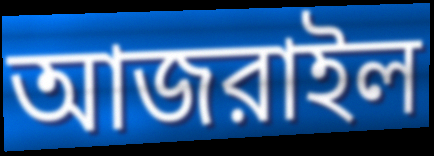
আজরাইল